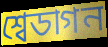
শ্বেডাগন